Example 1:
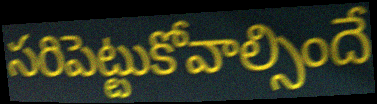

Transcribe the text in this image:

సరిపెట్టుకోవాల్సిందే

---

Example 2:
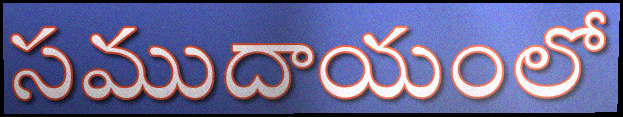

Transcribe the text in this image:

సముదాయంలో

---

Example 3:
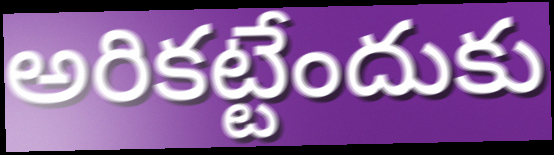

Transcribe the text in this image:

అరికట్టేందుకు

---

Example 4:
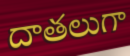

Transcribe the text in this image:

దాతలుగా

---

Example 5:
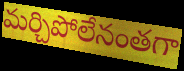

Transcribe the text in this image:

మర్చిపోలేనంతగా